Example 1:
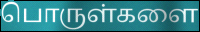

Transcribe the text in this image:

பொருள்களை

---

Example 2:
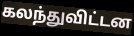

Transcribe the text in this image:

கலந்துவிட்டன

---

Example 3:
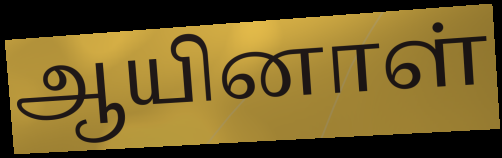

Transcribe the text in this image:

ஆயினாள்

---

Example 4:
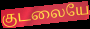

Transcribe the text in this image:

குடலையே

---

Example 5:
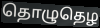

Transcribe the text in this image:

தொழுதெழ